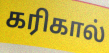
கரிகால்